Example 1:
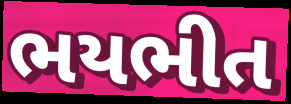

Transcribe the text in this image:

ભયભીત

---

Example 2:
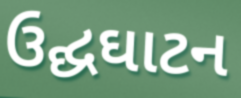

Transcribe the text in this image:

ઉદ્ઘઘાટન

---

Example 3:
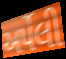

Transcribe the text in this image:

અર્પેલી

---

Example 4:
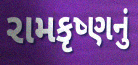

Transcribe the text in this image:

રામકૃષ્ણનું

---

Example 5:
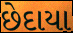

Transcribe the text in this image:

છેદાયા